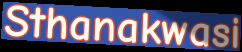
Sthanakwasi